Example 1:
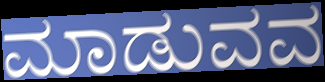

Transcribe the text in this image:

ಮಾಡುವವ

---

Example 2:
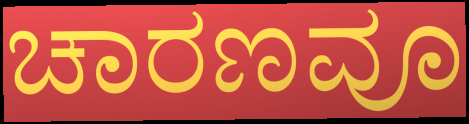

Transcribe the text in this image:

ಚಾರಣವೂ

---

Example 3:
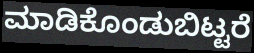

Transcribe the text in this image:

ಮಾಡಿಕೊಂಡುಬಿಟ್ಟರೆ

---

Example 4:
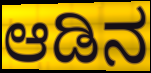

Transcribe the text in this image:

ಆಡಿನ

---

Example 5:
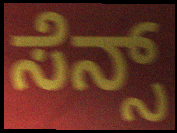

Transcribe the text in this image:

ಸೆನ್ಸ್